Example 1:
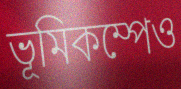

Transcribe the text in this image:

ভূমিকম্পেও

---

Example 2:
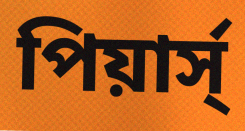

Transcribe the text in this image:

পিয়ার্স্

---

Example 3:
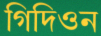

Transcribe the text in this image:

গিদিওন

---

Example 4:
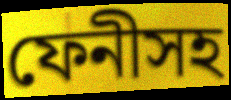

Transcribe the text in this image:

ফেনীসহ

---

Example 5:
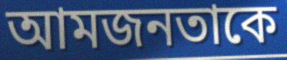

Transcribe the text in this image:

আমজনতাকে